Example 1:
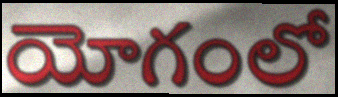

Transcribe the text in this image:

యోగంలో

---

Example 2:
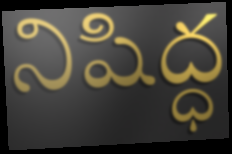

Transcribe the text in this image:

నిషిద్ధ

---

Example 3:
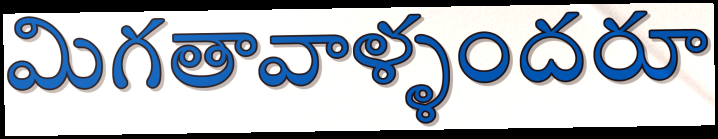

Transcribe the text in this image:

మిగతావాళ్ళందరూ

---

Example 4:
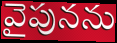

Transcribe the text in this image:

వైపునను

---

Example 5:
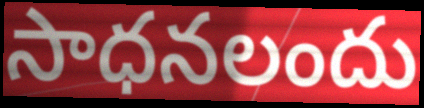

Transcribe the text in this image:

సాధనలందు